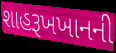
શાહરૂખખાનની